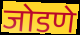
जोडणे